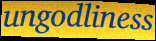
ungodliness